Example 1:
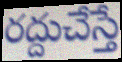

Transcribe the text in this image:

రద్దుచేస్తే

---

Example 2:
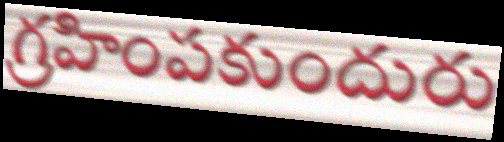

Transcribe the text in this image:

గ్రహింపకుందురు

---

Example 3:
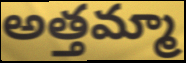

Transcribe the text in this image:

అత్తమ్మా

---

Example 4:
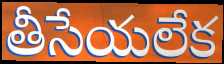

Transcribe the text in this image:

తీసేయలేక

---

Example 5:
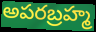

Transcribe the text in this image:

అపరబ్రహ్మ